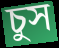
চুস